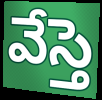
వేస్తె